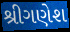
શ્રીગણેશ